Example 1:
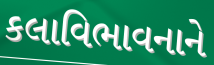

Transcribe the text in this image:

કલાવિભાવનાને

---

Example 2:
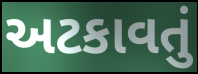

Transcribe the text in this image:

અટકાવતું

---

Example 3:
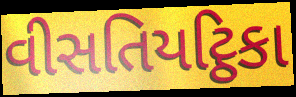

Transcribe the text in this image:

વીસતિયટ્ઠિકા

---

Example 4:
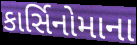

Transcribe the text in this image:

કાર્સિનોમાના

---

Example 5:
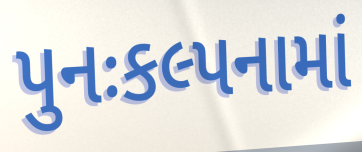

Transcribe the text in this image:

પુનઃકલ્પનામાં